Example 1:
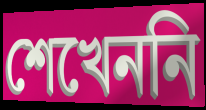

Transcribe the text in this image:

শেখেননি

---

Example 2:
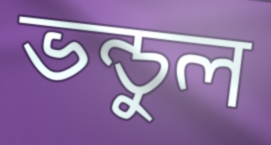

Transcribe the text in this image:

ভন্ডুল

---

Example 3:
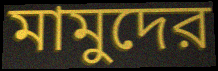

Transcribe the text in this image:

মামুদের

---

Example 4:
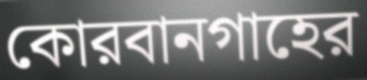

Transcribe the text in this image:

কোরবানগাহের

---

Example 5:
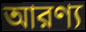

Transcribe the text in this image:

আরণ্য